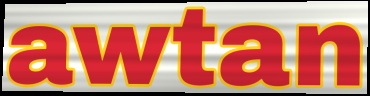
awtan